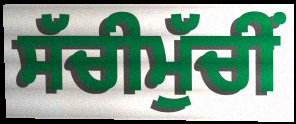
ਸੱਚੀਮੁੱਚੀਂ